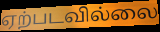
ஏற்படவில்லை